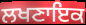
ਲਖਣਾਇਕ